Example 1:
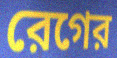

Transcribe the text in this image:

রেগের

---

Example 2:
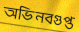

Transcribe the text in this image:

অভিনবগুপ্ত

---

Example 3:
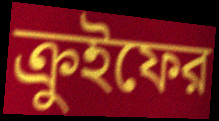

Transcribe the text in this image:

ক্রুইফের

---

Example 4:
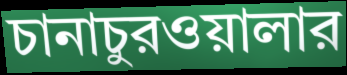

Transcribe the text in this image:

চানাচুরওয়ালার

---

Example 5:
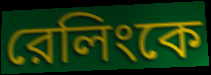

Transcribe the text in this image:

রেলিংকে